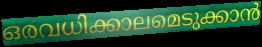
ഒരവധിക്കാലമെടുക്കാൻ